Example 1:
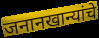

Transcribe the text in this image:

जनानखान्यांचे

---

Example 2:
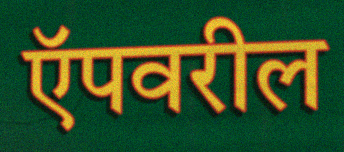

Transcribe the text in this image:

ऍपवरील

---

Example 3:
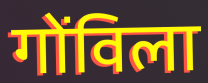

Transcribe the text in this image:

गोंविला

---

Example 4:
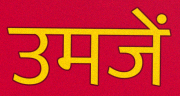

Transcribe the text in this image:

उमजें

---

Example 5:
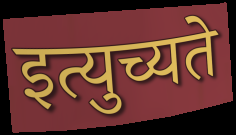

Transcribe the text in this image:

इत्युच्यते